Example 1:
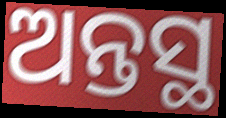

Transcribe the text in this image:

ଅନ୍ତସ୍ଥ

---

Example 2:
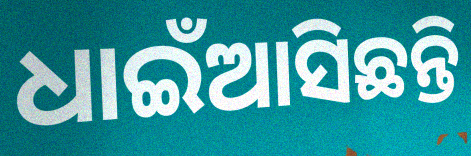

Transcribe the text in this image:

ଧାଇଁଆସିଛନ୍ତି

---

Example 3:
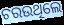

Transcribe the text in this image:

ଚରଉଥିଲେ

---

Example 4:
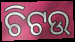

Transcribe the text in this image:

ଚିଟଉ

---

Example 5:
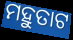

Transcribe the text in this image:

ମହୁତାଟ